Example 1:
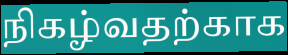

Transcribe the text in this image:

நிகழ்வதற்காக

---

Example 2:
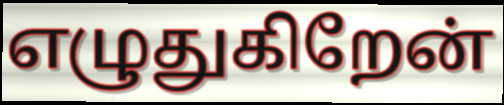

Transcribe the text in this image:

எழுதுகிறேன்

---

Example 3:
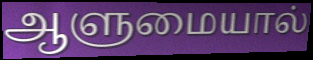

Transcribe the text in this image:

ஆளுமையால்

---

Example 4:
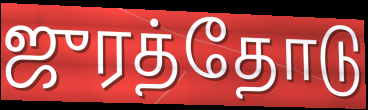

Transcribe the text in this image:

ஜுரத்தோடு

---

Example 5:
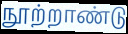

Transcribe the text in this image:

நூற்றாண்டு